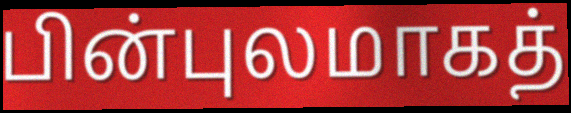
பின்புலமாகத்